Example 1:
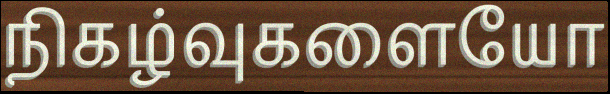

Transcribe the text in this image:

நிகழ்வுகளையோ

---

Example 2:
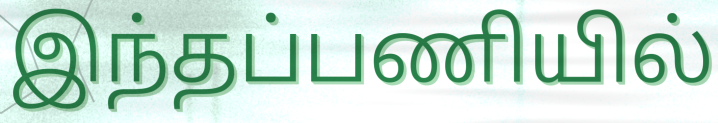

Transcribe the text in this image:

இந்தப்பணியில்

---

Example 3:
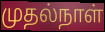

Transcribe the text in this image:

முதல்நாள்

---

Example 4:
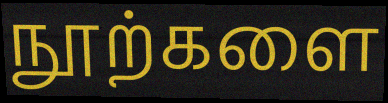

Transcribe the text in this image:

நூற்களை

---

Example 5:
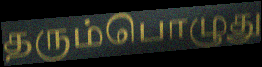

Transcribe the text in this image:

தரும்பொழுது